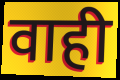
वाही